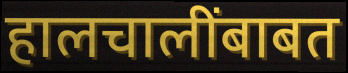
हालचालींबाबत